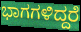
ಭಾಗಗಳಿದ್ದರೆ